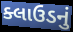
ક્લાઉડનું